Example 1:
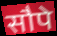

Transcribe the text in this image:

सौपे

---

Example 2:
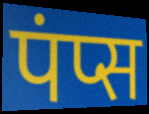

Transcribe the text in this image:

पंप्स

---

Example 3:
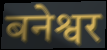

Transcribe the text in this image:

बनेश्वर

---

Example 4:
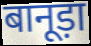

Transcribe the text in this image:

बानूड़ा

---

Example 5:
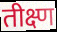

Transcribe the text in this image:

तीक्ष्ण